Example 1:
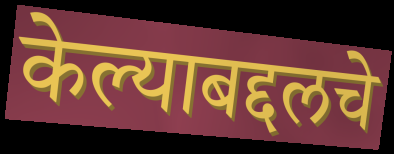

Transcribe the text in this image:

केल्याबद्दलचे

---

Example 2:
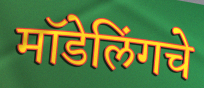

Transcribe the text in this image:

मॉडेलिंगचे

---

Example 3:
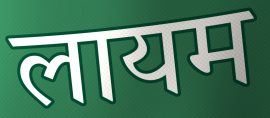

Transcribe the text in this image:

लायम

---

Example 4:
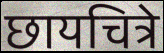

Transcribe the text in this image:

छायचित्रे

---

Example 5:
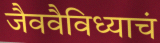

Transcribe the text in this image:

जैववैविध्याचं